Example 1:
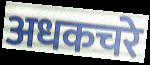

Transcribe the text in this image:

अधकचरे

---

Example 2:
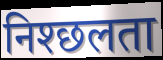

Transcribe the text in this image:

निश्छलता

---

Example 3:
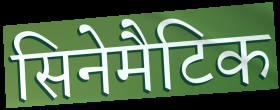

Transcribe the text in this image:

सिनेमैटिक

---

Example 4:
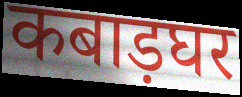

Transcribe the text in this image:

कबाड़घर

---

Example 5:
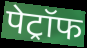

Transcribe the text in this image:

पेट्रॉफ